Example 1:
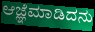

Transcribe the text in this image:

ಆಜ್ಞೆಮಾಡಿದನು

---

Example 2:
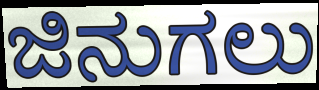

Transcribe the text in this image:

ಜಿನುಗಲು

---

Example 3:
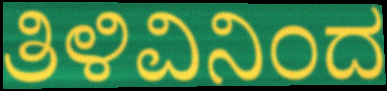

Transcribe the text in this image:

ತಿಳಿವಿನಿಂದ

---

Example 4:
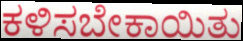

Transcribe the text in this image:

ಕಳಿಸಬೇಕಾಯಿತು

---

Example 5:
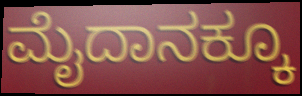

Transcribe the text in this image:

ಮೈದಾನಕ್ಕೂ